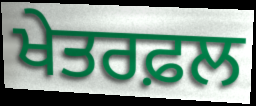
ਖੇਤਰਫ਼ਲ